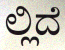
ಲ್ಲಿದೆ